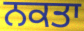
ਨਕਤਾ